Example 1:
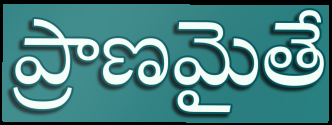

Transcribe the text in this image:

ప్రాణమైతే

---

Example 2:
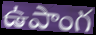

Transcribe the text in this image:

ఉపాంగ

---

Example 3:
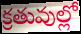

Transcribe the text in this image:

క్రతువుల్లో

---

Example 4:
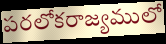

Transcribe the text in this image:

పరలోకరాజ్యములో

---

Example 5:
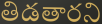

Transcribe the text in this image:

తిడతారని